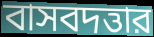
বাসবদত্তার